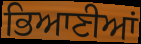
ਭਿਆਣੀਆਂ